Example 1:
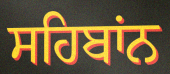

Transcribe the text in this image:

ਸਹਿਬਾਂਨ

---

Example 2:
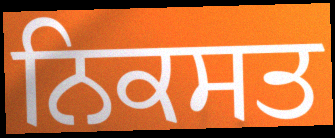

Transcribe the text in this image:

ਨਿਕਸਤ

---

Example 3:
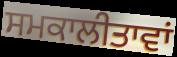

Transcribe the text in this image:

ਸਮਕਾਲੀਤਾਵਾਂ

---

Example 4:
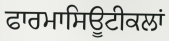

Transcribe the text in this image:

ਫਾਰਮਾਸਿਊਟੀਕਲਾਂ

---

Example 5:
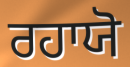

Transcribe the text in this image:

ਰਹਾਯੋ